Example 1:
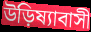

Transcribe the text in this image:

উড়িষ্যাবাসী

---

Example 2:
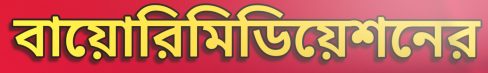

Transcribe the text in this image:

বায়োরিমিডিয়েশনের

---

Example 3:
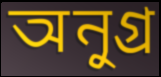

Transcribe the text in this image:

অনুগ্র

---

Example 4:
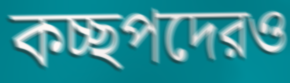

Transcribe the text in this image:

কচ্ছপদেরও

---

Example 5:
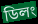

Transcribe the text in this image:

ডিলং